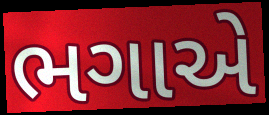
ભગાએ